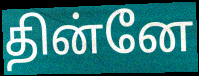
தின்னே